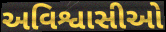
અવિશ્વાસીઓ